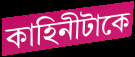
কাহিনীটাকে